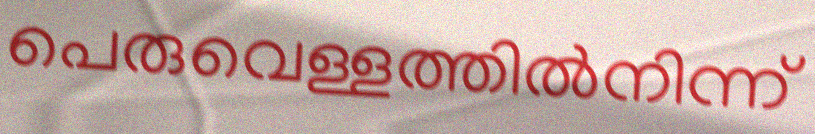
പെരുവെള്ളത്തിൽനിന്ന്